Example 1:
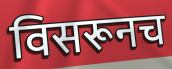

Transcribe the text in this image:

विसरूनच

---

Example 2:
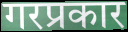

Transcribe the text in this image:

गरप्रकार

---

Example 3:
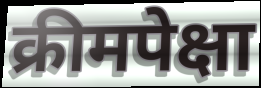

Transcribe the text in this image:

क्रीमपेक्षा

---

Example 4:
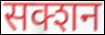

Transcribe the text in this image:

सक्शन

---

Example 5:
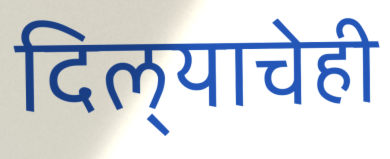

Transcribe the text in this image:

दिल्याचेही